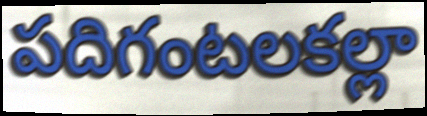
పదిగంటలకల్లా